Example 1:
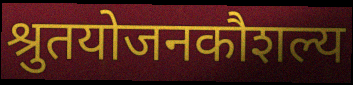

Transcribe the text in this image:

श्रुतयोजनकौशल्य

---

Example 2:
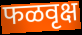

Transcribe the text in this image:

फळवृक्ष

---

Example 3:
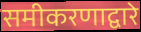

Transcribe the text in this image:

समीकरणाद्वारे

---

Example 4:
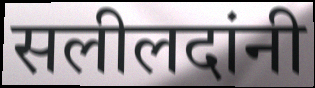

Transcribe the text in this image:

सलीलदांनी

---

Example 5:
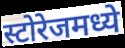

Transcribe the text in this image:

स्टोरेजमध्ये